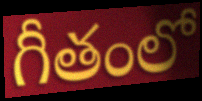
గీతంలో